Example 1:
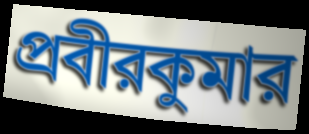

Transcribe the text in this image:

প্রবীরকুমার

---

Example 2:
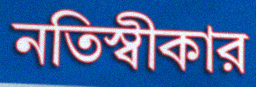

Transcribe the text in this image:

নতিস্বীকার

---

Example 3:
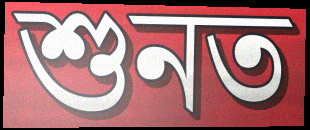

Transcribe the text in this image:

শুনত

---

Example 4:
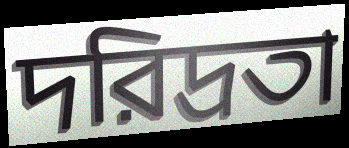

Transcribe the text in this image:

দরিদ্রতা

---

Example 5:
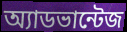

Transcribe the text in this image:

অ্যাডভান্টেজ